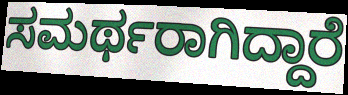
ಸಮರ್ಥರಾಗಿದ್ದಾರೆ